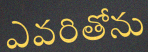
ఎవరితోను